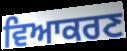
ਵਿਆਕਰਣ